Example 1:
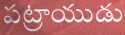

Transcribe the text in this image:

పట్రాయుడు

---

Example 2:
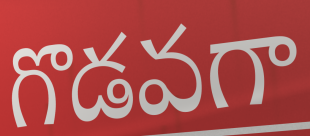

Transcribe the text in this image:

గొడవగా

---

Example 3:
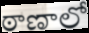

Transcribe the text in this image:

ఠాణాలో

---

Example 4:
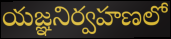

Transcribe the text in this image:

యజ్ఞనిర్వహణలో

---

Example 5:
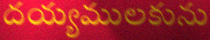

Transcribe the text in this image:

దయ్యములకును